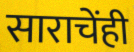
साराचेंही